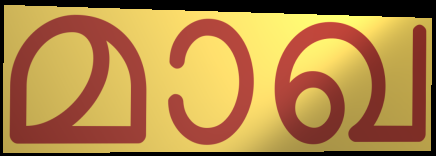
മാഖ